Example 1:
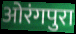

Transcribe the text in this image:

ओरंगपुरा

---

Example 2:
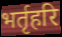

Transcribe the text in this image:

भर्तृहरि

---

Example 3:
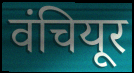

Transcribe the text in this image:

वंचियूर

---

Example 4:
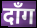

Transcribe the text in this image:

दाँग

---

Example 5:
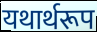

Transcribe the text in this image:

यथार्थरूप